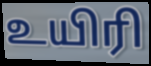
உயிரி